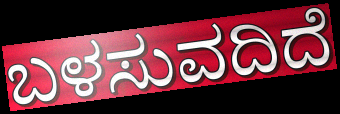
ಬಳಸುವದಿದೆ